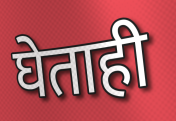
घेताही